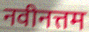
नवीनत्तम